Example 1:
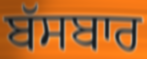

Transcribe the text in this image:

ਬੱਸਬਾਰ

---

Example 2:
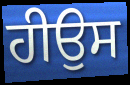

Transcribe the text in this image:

ਹੀਉਸ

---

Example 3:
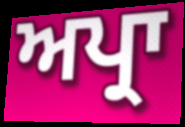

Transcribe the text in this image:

ਅਪ੍ਰਾ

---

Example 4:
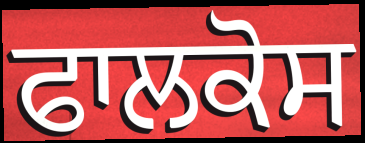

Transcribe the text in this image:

ਫਾਲਕੋਸ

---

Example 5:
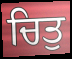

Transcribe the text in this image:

ਚਿਤੁ